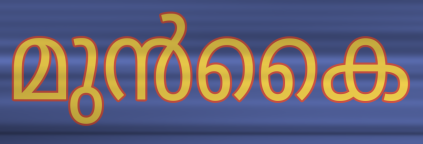
മുൻകൈ